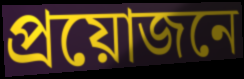
প্রয়োজনে